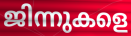
ജിന്നുകളെ